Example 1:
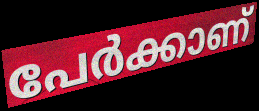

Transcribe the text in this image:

പേർക്കാണ്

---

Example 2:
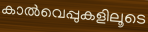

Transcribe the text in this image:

കാൽവെപ്പുകളിലൂടെ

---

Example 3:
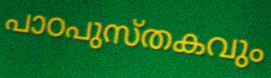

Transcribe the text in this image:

പാഠപുസ്തകവും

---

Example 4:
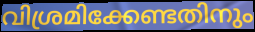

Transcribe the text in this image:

വിശ്രമിക്കേണ്ടതിനും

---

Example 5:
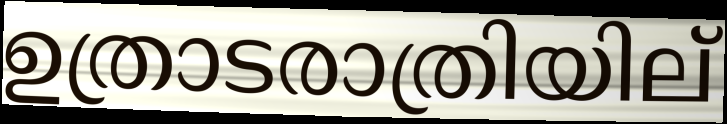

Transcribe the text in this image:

ഉത്രാടരാത്രിയില്